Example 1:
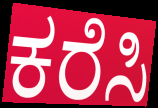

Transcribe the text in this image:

ಕರೆಸಿ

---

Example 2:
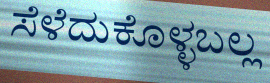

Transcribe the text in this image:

ಸೆಳೆದುಕೊಳ್ಳಬಲ್ಲ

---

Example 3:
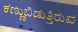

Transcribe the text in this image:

ಕಣ್ಣುಬಿಡುತ್ತಿರುವ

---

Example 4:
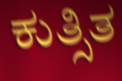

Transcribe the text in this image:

ಕುತ್ಸಿತ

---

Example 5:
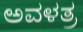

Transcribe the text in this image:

ಅವಳತ್ರ